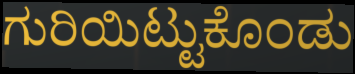
ಗುರಿಯಿಟ್ಟುಕೊಂಡು